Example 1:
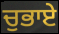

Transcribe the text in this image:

ਚੁਭਾਏ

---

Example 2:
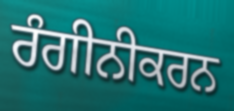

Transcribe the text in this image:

ਰੰਗੀਨੀਕਰਨ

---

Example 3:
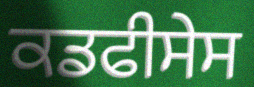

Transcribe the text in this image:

ਕਡਫੀਸੇਸ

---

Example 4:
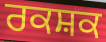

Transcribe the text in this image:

ਰਕਸ਼ਕ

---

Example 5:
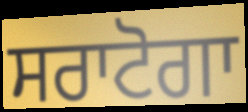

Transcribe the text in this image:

ਸਰਾਟੋਗਾ